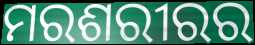
ମରଶରୀରର